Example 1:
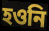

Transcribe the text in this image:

হওনি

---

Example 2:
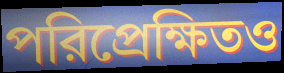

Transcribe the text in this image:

পরিপ্রেক্ষিতও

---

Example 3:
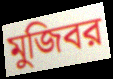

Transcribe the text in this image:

মুজিবর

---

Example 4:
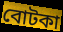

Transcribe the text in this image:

বোটকা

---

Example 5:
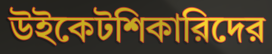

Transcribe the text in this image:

উইকেটশিকারিদের